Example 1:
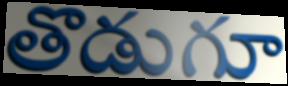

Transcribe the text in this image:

తొడుగూ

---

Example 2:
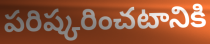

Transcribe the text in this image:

పరిష్కరించటానికి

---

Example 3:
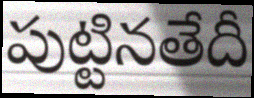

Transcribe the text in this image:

పుట్టినతేదీ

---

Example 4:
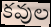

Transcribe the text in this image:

కవుల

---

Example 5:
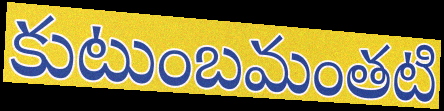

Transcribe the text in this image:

కుటుంబమంతటి